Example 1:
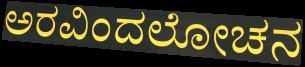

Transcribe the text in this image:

ಅರವಿಂದಲೋಚನ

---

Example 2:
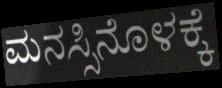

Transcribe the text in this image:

ಮನಸ್ಸಿನೊಳಕ್ಕೆ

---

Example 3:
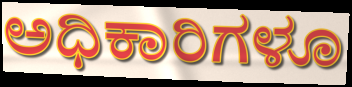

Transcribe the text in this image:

ಅಧಿಕಾರಿಗಳೂ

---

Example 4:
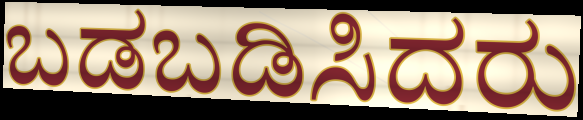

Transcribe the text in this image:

ಬಡಬಡಿಸಿದರು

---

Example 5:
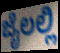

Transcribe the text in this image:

ಜೈಲಲ್ಲಿ